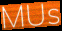
MUs